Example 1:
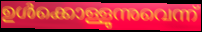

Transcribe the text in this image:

ഉൾക്കൊള്ളുന്നുവെന്ന്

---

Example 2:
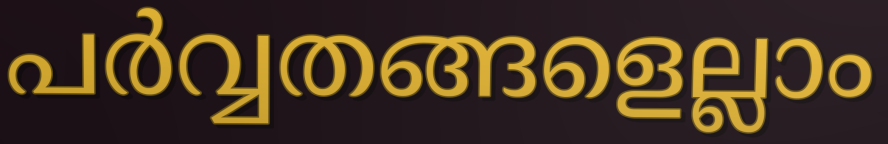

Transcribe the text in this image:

പർവ്വതങ്ങളെല്ലാം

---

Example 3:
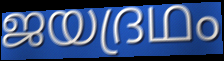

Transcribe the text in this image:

ജയദ്രഥം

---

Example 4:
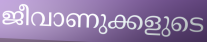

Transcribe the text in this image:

ജീവാണുക്കളുടെ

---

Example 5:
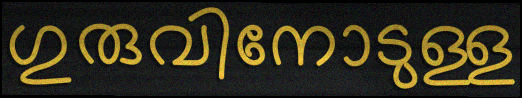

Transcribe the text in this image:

ഗുരുവിനോടുള്ള